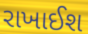
રાખાઈશ